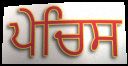
ਪੇਚਿਸ